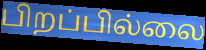
பிறப்பில்லை